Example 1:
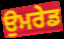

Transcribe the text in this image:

ਉਮਰੇਡ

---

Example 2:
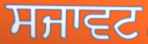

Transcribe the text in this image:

ਸਜਾਵਟ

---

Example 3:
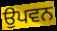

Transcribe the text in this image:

ਉਪਵਨ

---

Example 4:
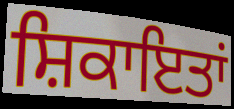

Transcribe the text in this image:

ਸ਼ਿਕਾਇਤਾਂ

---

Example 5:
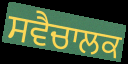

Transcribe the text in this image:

ਸਵੈਚਾਲਕ